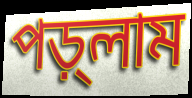
পড়্‌লাম